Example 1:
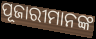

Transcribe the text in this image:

ପୂଜାରୀମାନଙ୍କ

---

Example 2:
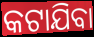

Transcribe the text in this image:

କଟାଯିବା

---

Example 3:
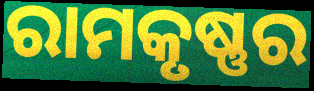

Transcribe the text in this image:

ରାମକୃଷ୍ଣର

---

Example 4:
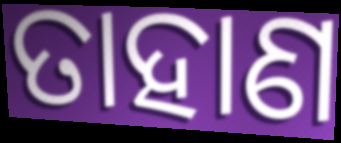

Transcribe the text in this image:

ତାହାଣ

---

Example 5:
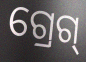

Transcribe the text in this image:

ଗ୍ରେଗ୍